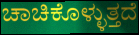
ಚಾಚಿಕೊಳ್ಳುತ್ತದೆ